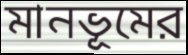
মানভূমের